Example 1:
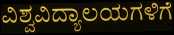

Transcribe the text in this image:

ವಿಶ್ವವಿದ್ಯಾಲಯಗಳಿಗೆ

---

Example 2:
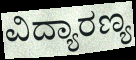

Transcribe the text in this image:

ವಿದ್ಯಾರಣ್ಯ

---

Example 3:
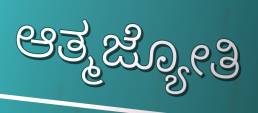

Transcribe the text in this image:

ಆತ್ಮಜ್ಯೋತಿ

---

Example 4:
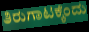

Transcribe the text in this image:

ತಿರುಗಾಟಕ್ಕೆಂದು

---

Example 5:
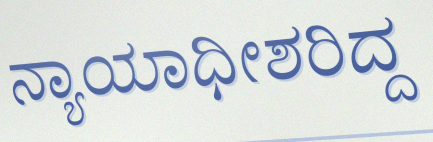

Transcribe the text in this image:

ನ್ಯಾಯಾಧೀಶರಿದ್ದ